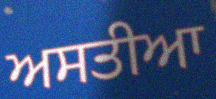
ਅਸਤੀਆ